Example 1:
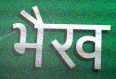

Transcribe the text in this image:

भैख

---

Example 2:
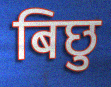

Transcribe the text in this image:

बिछु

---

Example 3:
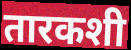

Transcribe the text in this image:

तारकशी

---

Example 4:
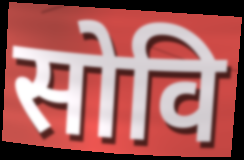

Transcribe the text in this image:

सोवि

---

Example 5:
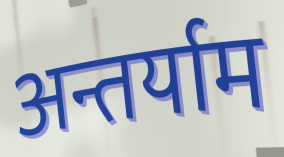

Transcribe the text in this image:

अन्तर्याम